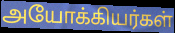
அயோக்கியர்கள்